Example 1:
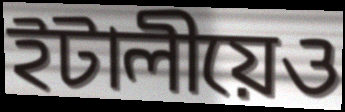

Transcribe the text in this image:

ইটালীয়েও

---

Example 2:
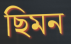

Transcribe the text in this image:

ছিমন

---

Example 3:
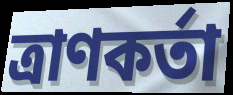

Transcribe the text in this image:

ত্ৰাণকৰ্তা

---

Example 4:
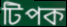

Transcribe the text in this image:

টিপক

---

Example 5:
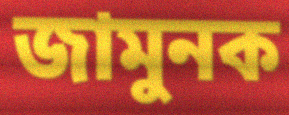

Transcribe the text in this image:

জামুনক